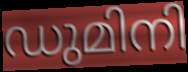
ഡുമിനി